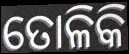
ତୋଳିକି